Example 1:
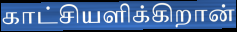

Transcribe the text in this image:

காட்சியளிக்கிறான்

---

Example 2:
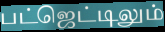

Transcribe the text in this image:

பட்ஜெட்டிலும்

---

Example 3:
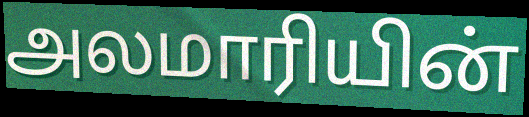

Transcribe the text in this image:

அலமாரியின்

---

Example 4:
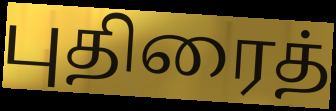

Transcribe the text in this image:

புதிரைத்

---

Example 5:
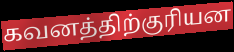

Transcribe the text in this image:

கவனத்திற்குரியன